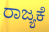
ರಾಜ್ಯಕೆ